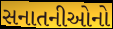
સનાતનીઓનો